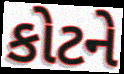
કોટને